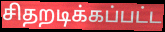
சிதறடிக்கப்பட்ட